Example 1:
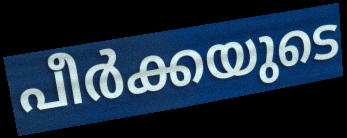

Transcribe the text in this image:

പീർക്കയുടെ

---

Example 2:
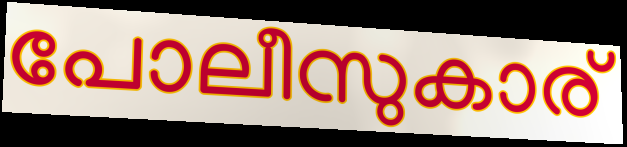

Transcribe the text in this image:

പോലീസുകാര്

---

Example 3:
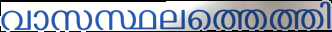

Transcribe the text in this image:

വാസസ്ഥലത്തെത്തി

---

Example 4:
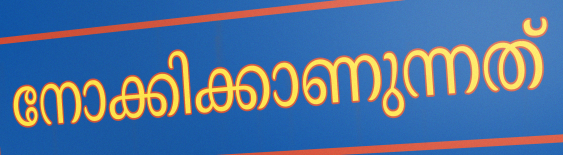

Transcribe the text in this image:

നോക്കിക്കാണുന്നത്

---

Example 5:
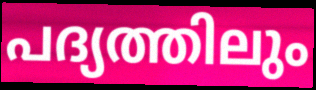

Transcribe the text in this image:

പദ്യത്തിലും